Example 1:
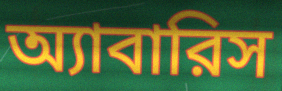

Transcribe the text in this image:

অ্যাবারিস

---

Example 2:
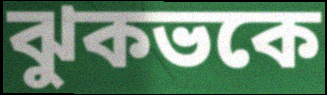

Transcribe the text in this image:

ঝুকভকে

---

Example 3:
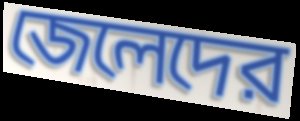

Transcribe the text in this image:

জেলেদের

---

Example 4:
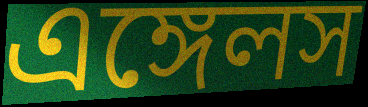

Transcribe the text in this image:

এঙ্গেলস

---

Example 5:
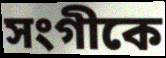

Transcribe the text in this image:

সংগীকে